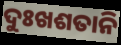
ଦୁଃଖଶତାନି